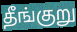
தீங்குறு